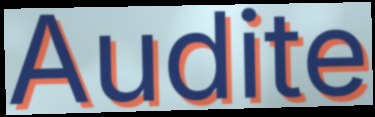
Audite